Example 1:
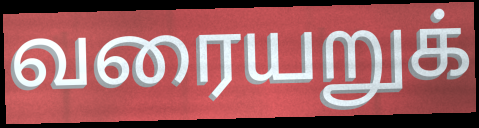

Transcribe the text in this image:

வரையறுக்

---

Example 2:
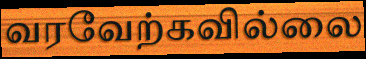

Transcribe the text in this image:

வரவேற்கவில்லை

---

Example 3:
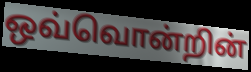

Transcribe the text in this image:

ஒவ்வொன்றின்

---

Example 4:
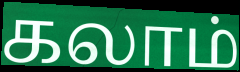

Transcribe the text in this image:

கலாம்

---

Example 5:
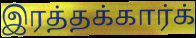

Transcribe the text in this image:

இரத்தக்கார்க்